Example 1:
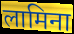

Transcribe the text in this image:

लामिना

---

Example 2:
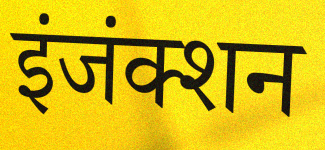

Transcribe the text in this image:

इंजंक्शन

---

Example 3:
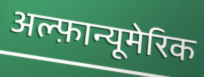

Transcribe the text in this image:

अल्फ़ान्यूमेरिक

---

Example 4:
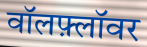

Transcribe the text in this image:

वॉलफ़्लॉवर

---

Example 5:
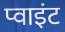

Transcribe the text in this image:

प्‍वाइंट